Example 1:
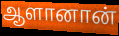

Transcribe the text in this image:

ஆளானான்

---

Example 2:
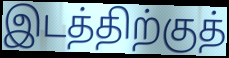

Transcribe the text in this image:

இடத்திற்குத்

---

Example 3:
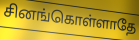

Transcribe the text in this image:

சினங்கொள்ளாதே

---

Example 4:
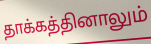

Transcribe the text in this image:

தாக்கத்தினாலும்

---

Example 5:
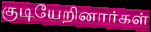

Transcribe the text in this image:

குடியேறினார்கள்